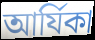
আর্যিকা